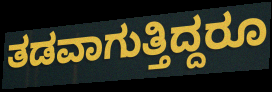
ತಡವಾಗುತ್ತಿದ್ದರೂ